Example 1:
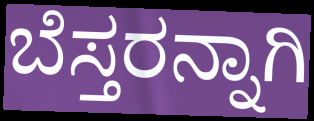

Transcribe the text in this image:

ಬೆಸ್ತರನ್ನಾಗಿ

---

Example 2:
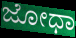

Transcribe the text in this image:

ಜೋಧಾ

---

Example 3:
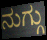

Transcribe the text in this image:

ನುಗ್ಗು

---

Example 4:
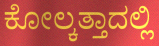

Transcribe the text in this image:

ಕೋಲ್ಕತ್ತಾದಲ್ಲಿ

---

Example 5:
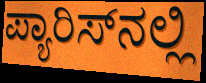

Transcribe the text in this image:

ಪ್ಯಾರಿಸ್‌ನಲ್ಲಿ